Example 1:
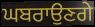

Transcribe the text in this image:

ਘਬਰਾਉਣਗੇ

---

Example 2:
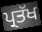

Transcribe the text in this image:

ਪ੍ਰਤੱਖ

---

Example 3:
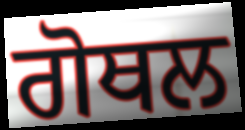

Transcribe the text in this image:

ਗੋਥਲ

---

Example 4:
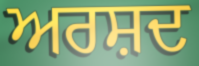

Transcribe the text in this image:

ਅਰਸ਼ਦ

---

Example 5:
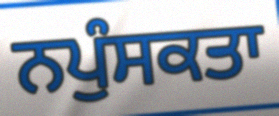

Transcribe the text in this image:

ਨਪੁੰਸਕਤਾ